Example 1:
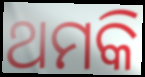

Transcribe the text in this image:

ଥମକି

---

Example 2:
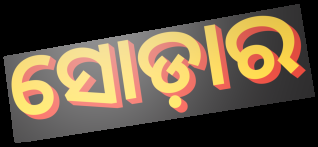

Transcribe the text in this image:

ସୋଡ଼ାର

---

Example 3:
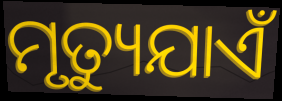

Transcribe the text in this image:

ମୃତ୍ୟୁଯାଏଁ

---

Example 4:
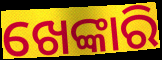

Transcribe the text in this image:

ଖେଙ୍କାରି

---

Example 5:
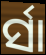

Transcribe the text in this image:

ର୍ସା